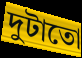
দুটাতো